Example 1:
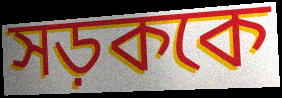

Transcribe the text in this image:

সড়ককে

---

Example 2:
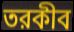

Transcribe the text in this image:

তরকীব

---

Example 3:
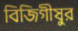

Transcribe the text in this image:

বিজিগীষুর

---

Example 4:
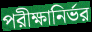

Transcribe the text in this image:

পরীক্ষানির্ভর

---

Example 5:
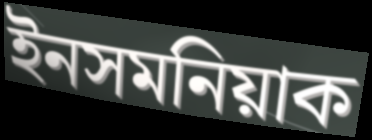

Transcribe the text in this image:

ইনসমনিয়াক